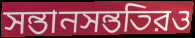
সন্তানসন্ততিরও